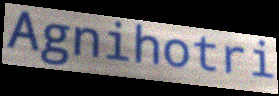
Agnihotri